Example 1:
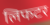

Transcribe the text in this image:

लिफटर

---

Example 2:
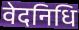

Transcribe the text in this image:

वेदनिधि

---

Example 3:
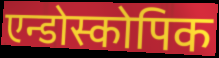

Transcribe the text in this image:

एन्डोस्कोपिक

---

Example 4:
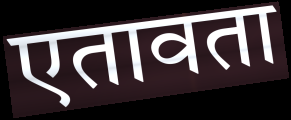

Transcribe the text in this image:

एतावता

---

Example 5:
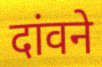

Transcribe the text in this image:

दांवने